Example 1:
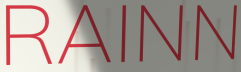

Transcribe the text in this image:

RAINN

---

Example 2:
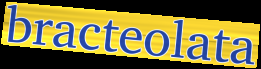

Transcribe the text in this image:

bracteolata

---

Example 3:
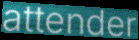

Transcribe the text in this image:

attender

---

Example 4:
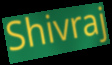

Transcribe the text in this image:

Shivraj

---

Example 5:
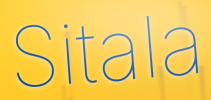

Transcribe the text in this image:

Sitala